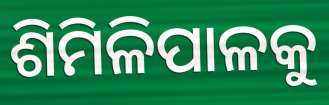
ଶିମିଳିପାଳକୁ